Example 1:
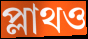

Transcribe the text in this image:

প্লাথও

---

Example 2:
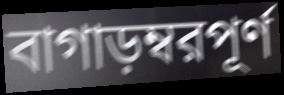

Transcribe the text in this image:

বাগাড়ম্বরপূর্ণ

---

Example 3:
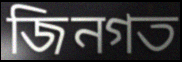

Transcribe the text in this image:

জিনগত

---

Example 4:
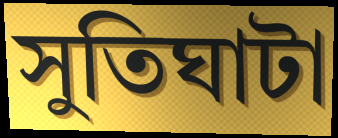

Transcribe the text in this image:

সুতিঘাটা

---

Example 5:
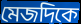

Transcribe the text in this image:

মেজদিকে